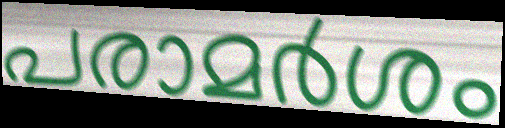
പരാമർശം